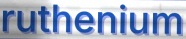
ruthenium